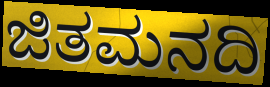
ಜಿತಮನದಿ